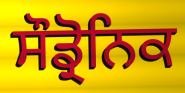
ਸੌਡ੍ਰੋਨਿਕ